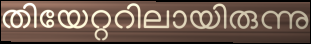
തിയേറ്ററിലായിരുന്നു